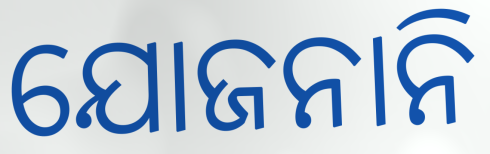
ଯୋଜନାନି